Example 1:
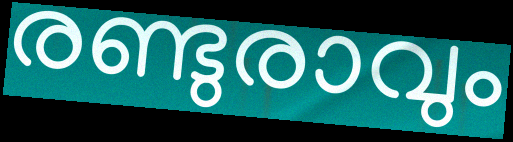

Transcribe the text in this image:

രണ്ടുരാവും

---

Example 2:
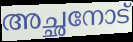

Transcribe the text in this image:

അച്ഛനോട്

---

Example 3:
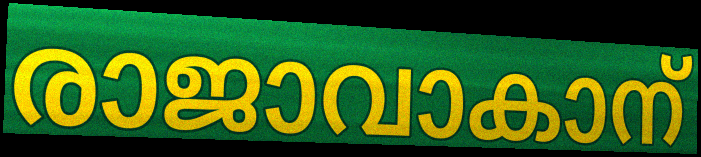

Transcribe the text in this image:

രാജാവാകാന്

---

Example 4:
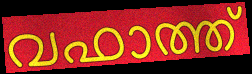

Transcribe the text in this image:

വഫാത്ത്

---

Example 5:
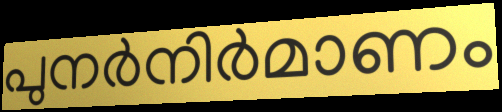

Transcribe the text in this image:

പുനർനിർമാണം